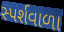
સ્પર્શવાળા